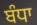
ਬੰਧਾ